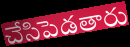
చేసిపెడతారు